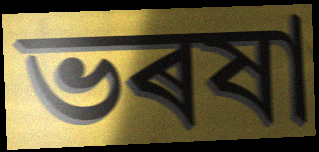
ভৰষা